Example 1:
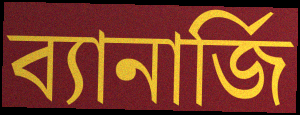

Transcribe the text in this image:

ব্যানার্জি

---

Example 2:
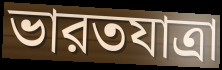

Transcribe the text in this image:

ভারতযাত্রা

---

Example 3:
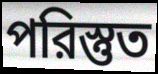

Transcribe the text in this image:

পরিস্তুত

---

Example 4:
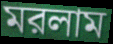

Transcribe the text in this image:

মরলাম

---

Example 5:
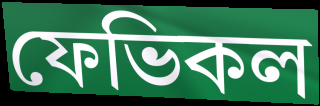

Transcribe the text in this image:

ফেভিকল